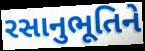
રસાનુભૂતિને